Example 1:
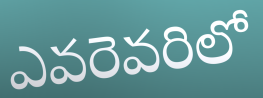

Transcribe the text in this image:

ఎవరెవరిలో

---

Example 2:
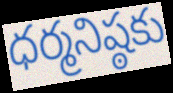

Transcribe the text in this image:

ధర్మనిష్ఠకు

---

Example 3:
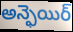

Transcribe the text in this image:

అన్ఫెయిర్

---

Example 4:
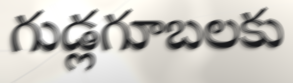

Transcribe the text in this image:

గుడ్లగూబలకు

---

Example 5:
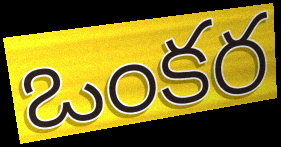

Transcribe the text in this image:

ఒంకర